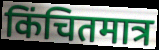
किंचितमात्र